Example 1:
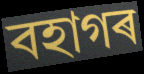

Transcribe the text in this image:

বহাগৰ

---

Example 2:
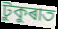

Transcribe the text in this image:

টুকুৰাত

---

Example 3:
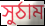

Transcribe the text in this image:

সুঠাম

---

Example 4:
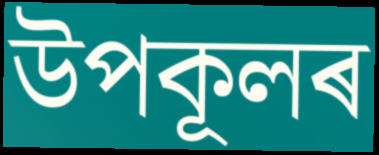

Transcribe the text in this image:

উপকূলৰ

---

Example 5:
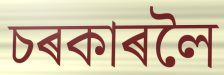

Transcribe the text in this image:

চৰকাৰলৈ